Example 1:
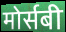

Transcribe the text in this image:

मोर्सबी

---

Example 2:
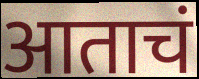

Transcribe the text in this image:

आताचं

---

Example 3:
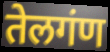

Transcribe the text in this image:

तेलगंण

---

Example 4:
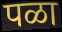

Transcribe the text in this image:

पळा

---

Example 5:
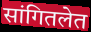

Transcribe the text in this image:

सांगितलेत